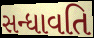
સન્ધાવતિ